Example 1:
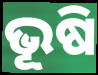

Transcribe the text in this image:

ଭୂଷି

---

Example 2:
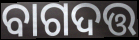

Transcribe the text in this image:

ବାଗଦତ୍ତ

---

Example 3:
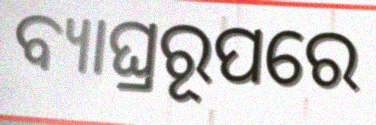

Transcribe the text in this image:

ବ୍ୟାଘ୍ରରୂପରେ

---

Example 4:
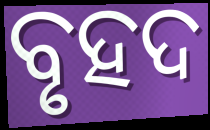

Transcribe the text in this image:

ବୃହଦ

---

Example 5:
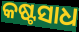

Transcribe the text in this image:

କଷ୍ଟସାଧ